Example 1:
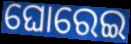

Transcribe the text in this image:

ଘୋରେଇ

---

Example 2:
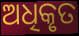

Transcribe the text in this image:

ଅଧିକୃତ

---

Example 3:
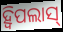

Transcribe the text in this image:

ହ୍ୱିପଲାସ୍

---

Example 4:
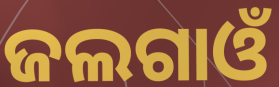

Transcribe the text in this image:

ଜଲଗାଓଁ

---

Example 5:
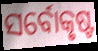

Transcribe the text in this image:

ସର୍ବୋକୃଷ୍ଟ